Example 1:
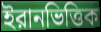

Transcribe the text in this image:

ইরানভিত্তিক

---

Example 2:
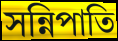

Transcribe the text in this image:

সন্নিপাতি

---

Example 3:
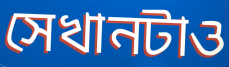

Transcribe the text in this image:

সেখানটাও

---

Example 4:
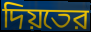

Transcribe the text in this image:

দিয়তের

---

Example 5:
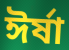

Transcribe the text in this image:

ঈর্ষা